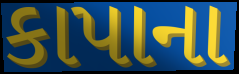
કાપાના